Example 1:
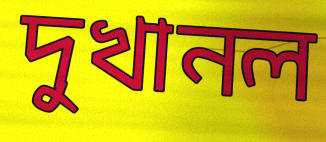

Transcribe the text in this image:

দুখানল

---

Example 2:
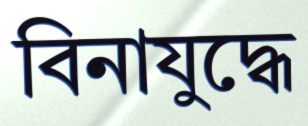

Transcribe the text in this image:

বিনাযুদ্ধে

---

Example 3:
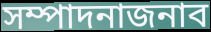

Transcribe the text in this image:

সম্পাদনাজনাব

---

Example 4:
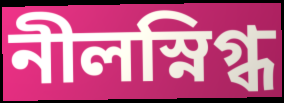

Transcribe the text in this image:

নীলস্নিগ্ধ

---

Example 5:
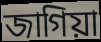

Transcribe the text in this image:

জাগিয়া